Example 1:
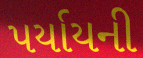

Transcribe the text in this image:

પર્યાયની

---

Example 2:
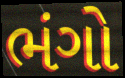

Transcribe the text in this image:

ભંગો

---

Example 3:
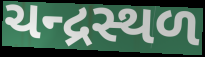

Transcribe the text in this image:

ચન્દ્રસ્થળ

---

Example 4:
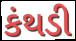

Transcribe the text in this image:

કંથડી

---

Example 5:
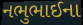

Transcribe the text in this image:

નભુભાઈના